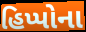
હિપ્પોના